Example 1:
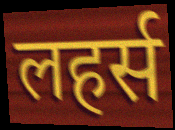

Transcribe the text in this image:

लहर्स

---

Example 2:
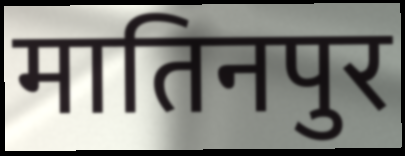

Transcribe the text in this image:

मातिनपुर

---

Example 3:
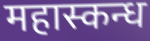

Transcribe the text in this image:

महास्कन्ध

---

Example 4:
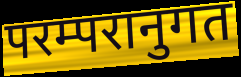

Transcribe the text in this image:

परम्परानुगत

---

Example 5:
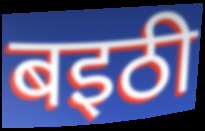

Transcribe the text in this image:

बइठी